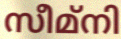
സീമ്നി